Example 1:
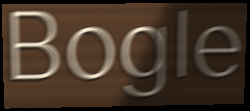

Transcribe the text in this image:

Bogle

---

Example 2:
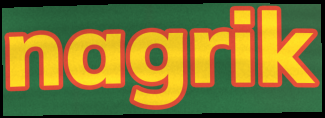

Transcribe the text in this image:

nagrik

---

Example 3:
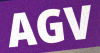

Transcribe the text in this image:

AGV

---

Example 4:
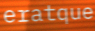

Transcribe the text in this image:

eratque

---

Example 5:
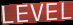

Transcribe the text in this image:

LEVEL